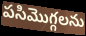
పసిమొగ్గలను